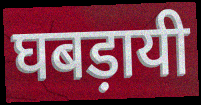
घबड़ायी